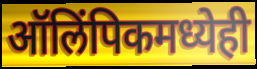
ऑलिंपिकमध्येही